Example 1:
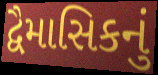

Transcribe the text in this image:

દ્વૈમાસિકનું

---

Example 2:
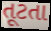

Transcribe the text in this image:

તૂટતા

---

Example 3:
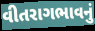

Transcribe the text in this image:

વીતરાગભાવનું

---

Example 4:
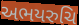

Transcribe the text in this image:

અભયરુચિ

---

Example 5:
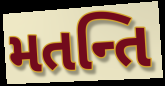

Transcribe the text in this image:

મતન્તિ